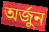
অৰ্জুন